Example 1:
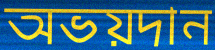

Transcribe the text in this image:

অভয়দান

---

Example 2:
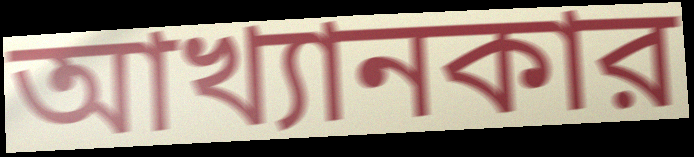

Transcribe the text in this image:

আখ্যানকার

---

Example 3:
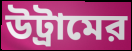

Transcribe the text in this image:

উট্রামের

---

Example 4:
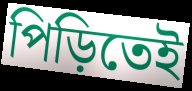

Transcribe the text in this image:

পিড়িতেই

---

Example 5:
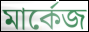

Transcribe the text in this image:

মার্কেজ